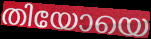
തിയോയെ